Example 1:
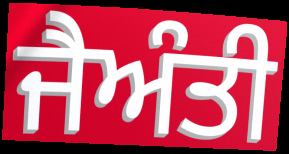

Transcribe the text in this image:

ਜੈਅੰਤੀ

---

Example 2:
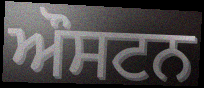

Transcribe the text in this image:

ਔਸਟਨ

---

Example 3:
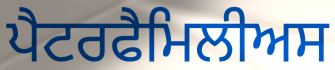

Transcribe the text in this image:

ਪੈਟਰਫੈਮਿਲੀਅਸ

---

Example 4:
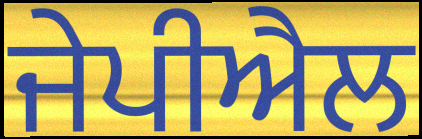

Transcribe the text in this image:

ਜੇਪੀਐਲ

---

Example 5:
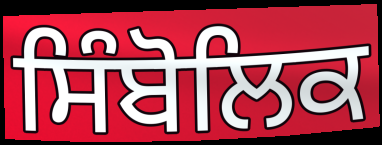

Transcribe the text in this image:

ਸਿੰਬੋਲਿਕ